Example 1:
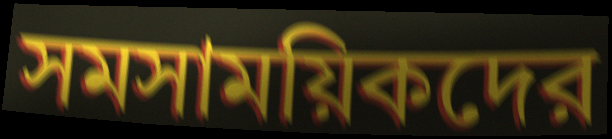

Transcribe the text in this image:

সমসাময়িকদের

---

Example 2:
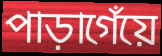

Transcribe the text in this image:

পাড়াগেঁয়ে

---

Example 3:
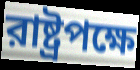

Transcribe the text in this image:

রাষ্ট্রপক্ষে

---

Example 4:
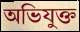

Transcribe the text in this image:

অভিযুক্ত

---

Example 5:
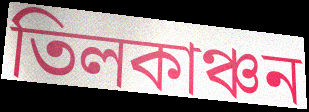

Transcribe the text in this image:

তিলকাঞ্চন